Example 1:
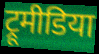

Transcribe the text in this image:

ट्रूमीडिया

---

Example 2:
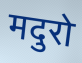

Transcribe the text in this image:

मदुरो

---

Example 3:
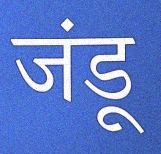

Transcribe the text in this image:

जंडू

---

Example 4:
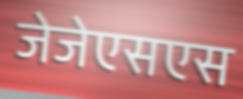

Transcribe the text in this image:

जेजेएसएस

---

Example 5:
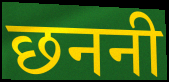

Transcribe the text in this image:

छननी